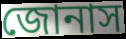
জোনাস